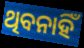
ଥିବନାହିଁ